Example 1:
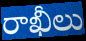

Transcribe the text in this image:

రాఖీలు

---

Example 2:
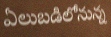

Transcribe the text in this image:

ఏలుబడిలోనున్న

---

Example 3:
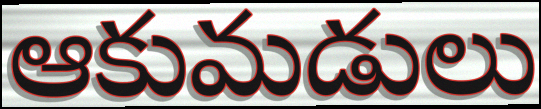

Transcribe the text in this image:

ఆకుమడులు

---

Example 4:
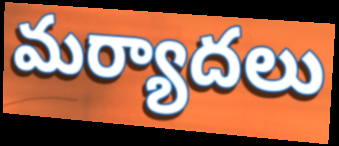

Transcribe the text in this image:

మర్యాదలు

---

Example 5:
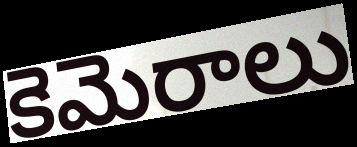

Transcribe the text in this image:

కెమెరాలు